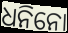
ଧନିନୋ